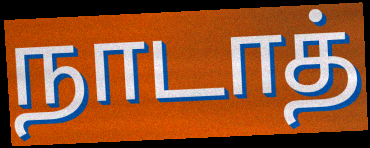
நாடாத்